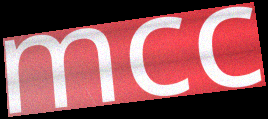
mcc